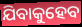
ଯିବାକୁହେବ